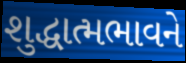
શુદ્ધાત્મભાવને